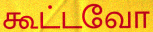
கூட்டவோ